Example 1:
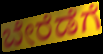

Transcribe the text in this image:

ಬೇರೆಡೆಗೆ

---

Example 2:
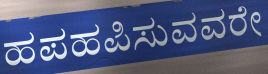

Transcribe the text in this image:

ಹಪಹಪಿಸುವವರೇ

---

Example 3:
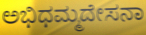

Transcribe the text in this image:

ಅಭಿಧಮ್ಮದೇಸನಾ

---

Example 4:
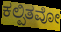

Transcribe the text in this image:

ಕಲ್ಪಿತವೋ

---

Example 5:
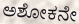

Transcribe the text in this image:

ಅಶೋಕನೇ